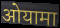
ओयामा